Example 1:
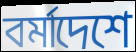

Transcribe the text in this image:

বর্মাদেশে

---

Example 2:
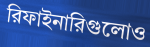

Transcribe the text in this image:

রিফাইনারিগুলোও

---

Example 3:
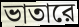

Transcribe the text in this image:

ভাতারে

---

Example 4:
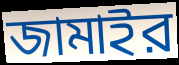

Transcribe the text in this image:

জামাইর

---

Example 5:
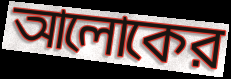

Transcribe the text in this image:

আলোকের